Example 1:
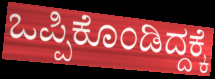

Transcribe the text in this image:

ಒಪ್ಪಿಕೊಂಡಿದ್ದಕ್ಕೆ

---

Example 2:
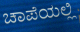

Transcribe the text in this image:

ಚಾಪೆಯಲ್ಲಿ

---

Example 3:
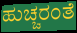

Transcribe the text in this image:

ಹುಚ್ಚರಂತೆ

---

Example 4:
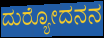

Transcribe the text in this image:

ದುರ್‍ಯೋದನನ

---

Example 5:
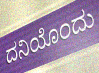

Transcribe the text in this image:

ದನಿಯೊಂದು